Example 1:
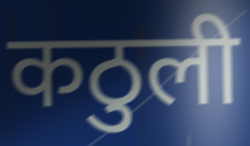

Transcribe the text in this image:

कठुली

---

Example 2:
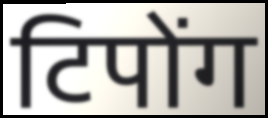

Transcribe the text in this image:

टिपोंग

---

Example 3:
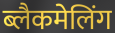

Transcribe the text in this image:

ब्लैकमेलिंग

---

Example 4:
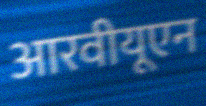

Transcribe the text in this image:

आरवीयूएन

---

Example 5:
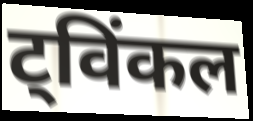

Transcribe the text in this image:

ट्विंकल